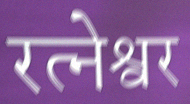
रत्नेश्वर